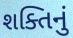
શક્તિનું